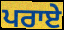
ਪਰਾਏ